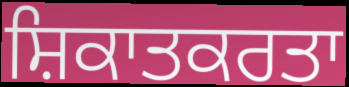
ਸ਼ਿਕਾਤਕਰਤਾ